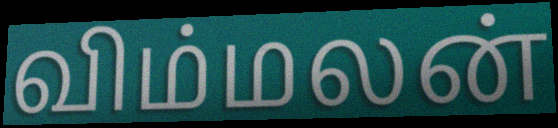
விம்மலன்